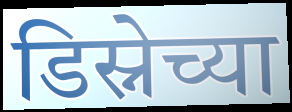
डिस्नेच्या